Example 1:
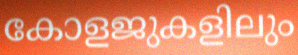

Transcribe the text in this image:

കോളജുകളിലും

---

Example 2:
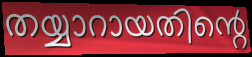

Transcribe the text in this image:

തയ്യാറായതിന്റെ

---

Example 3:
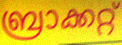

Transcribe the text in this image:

ബ്രാക്കറ്റ്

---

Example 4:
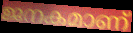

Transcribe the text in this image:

ജനകമാണ്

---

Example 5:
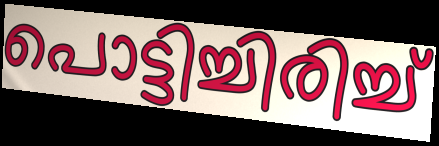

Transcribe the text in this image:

പൊട്ടിച്ചിരിച്ച്